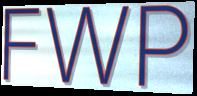
FWP